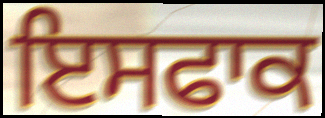
ਇਸਫਾਕ